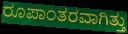
ರೂಪಾಂತರವಾಗಿತ್ತು